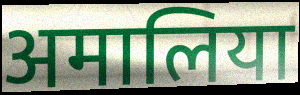
अमालिया